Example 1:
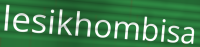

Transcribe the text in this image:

lesikhombisa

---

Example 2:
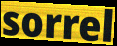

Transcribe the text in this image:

sorrel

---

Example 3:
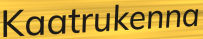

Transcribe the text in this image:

Kaatrukenna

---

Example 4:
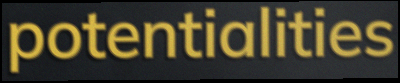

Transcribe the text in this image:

potentialities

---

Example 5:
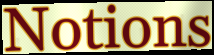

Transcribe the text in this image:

Notions